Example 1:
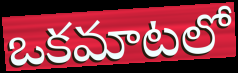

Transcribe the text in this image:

ఒకమాటలో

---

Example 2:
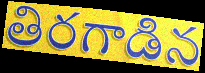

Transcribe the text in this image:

తిరగాడిన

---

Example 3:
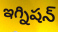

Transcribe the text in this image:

ఇగ్నిషన్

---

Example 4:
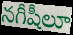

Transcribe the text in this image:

నగీషీలూ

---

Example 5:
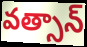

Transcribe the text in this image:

వత్సాన్